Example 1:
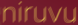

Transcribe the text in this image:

niruvu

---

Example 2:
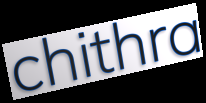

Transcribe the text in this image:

chithra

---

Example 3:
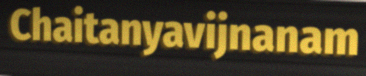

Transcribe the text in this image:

Chaitanyavijnanam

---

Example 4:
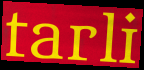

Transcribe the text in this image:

tarli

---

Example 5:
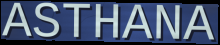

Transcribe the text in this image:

ASTHANA